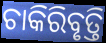
ଚାକିରିବୃତ୍ତି